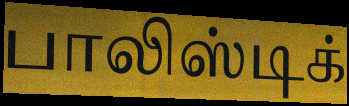
பாலிஸ்டிக்